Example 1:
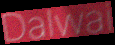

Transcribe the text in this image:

Dalwai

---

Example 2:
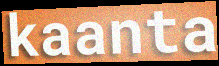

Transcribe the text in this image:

kaanta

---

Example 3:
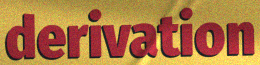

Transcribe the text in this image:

derivation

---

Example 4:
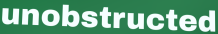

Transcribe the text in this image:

unobstructed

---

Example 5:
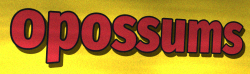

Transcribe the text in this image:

opossums